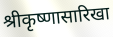
श्रीकृष्णासारिखा